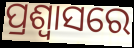
ପ୍ରଶ୍ଵାସରେ